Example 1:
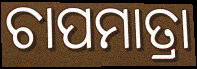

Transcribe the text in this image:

ଚାପମାତ୍ରା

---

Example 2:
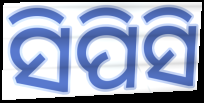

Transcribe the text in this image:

ସିପିସି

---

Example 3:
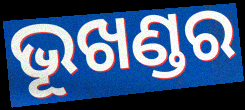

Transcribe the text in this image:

ଭୂଖଣ୍ଡର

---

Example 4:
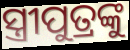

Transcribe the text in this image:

ସ୍ତ୍ରୀପୁତ୍ରଙ୍କୁ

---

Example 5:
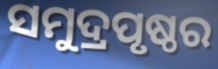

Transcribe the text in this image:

ସମୁଦ୍ରପୃଷ୍ଠର